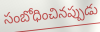
సంబోధించినప్పుడు